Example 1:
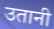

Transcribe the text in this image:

उतानी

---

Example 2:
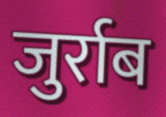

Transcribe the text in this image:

जुर्राब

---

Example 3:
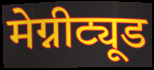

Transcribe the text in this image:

मेग्नीट्यूड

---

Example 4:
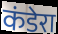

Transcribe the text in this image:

कंडेरा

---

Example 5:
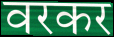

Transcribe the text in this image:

वरकर